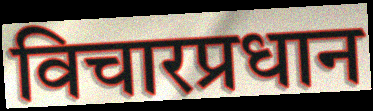
विचारप्रधान